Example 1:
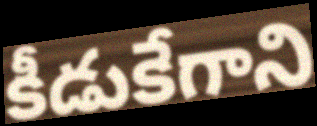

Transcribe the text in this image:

కీడుకేగాని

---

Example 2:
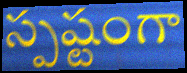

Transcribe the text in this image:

స్పష్టంగా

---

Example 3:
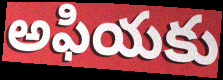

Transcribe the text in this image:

అఫియకు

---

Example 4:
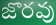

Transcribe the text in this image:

జొరవు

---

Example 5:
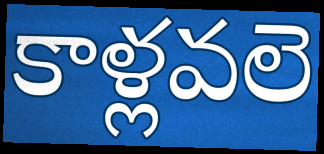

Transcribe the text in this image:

కాళ్లవలె